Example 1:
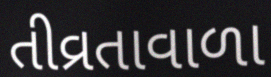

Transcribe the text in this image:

તીવ્રતાવાળા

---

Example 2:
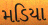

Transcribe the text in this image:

મડિયા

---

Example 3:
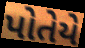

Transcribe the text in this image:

પોતેયે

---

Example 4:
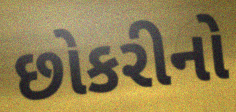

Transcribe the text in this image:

છોકરીનો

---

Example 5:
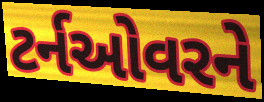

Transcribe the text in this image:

ટર્નઓવરને